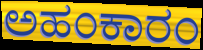
ಅಹಂಕಾರಂ